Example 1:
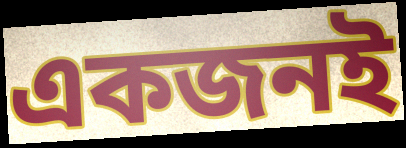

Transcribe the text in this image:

একজনই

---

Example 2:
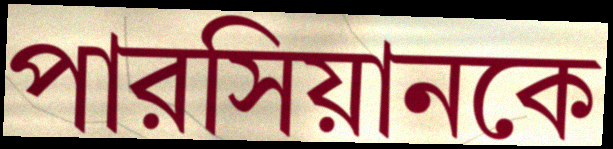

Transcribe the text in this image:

পারসিয়ানকে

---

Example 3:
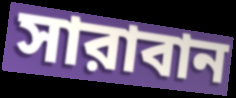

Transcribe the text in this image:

সারাবান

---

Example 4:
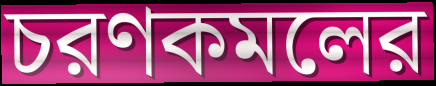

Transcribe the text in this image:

চরণকমলের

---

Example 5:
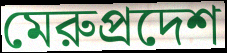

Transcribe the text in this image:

মেরুপ্রদেশ